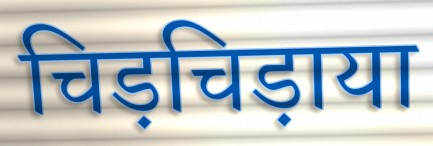
चिड़चिड़ाया